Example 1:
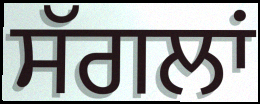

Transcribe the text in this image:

ਸੱਗਲਾਂ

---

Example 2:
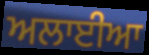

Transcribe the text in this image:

ਅਲਾਈਆ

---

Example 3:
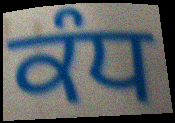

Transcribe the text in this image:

ਕੰਧ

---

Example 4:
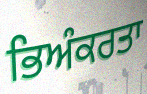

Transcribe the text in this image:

ਭਿਅੰਕਰਤਾ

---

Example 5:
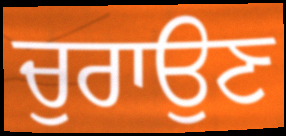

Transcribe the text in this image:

ਚੁਰਾਉਣ